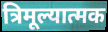
त्रिमूल्यात्मक